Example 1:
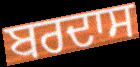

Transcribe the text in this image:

ਬਰਦਾਸ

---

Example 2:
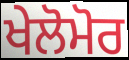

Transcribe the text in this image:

ਖੇਲੋਮੋਰ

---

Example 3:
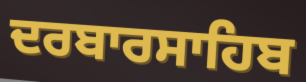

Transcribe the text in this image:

ਦਰਬਾਰਸਾਹਿਬ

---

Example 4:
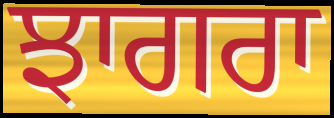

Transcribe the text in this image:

ਝਾਗਰਾ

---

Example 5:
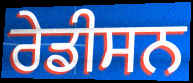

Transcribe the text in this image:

ਰੇਡੀਸਨ